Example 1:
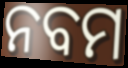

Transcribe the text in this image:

ନବମ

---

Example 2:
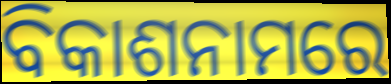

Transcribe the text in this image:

ବିକାଶନାମରେ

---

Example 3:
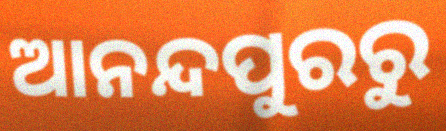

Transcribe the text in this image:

ଆନନ୍ଦପୁରରୁ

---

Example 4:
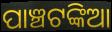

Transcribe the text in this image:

ପାଞ୍ଚଟଙ୍କିଆ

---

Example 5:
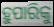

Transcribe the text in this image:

ହୁପାରିକୁ